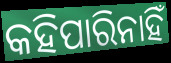
କହିପାରିନାହିଁ